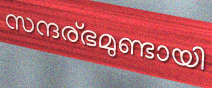
സന്ദര്ഭമുണ്ടായി